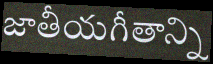
జాతీయగీతాన్ని